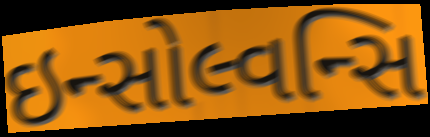
ઇન્સોલ્વન્સિ